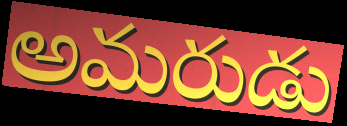
అమరుడు